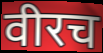
वीरच